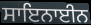
ਸਾਇਨਾਈਨ